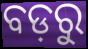
ବଡ଼ରୁ